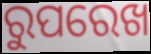
ରୁପରେଖ